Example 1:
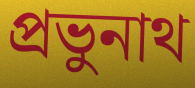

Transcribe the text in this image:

প্রভুনাথ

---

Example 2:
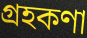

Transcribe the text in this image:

গ্রহকণা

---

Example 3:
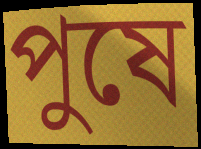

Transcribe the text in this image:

পুষে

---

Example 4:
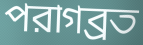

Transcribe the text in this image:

পরাগব্রত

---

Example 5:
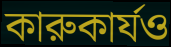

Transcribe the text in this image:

কারুকার্যও